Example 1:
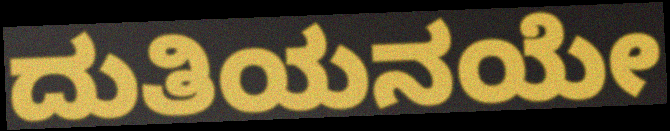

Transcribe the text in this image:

ದುತಿಯನಯೇ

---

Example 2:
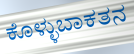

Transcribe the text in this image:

ಕೊಳ್ಳುಬಾಕತನ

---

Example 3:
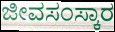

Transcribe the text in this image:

ಜೀವಸಂಸ್ಕಾರ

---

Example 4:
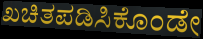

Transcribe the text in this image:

ಖಚಿತಪಡಿಸಿಕೊಂಡೇ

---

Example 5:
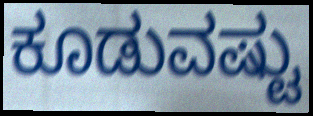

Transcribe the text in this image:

ಕೂಡುವಷ್ಟು